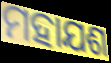
ମହାଯଶ